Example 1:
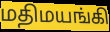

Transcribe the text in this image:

மதிமயங்கி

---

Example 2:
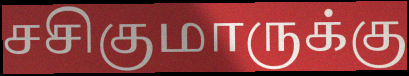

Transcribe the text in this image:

சசிகுமாருக்கு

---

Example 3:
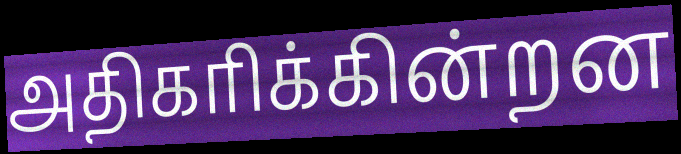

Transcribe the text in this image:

அதிகரிக்கின்றன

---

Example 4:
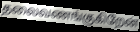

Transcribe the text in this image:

தலைவணங்குகிறேன்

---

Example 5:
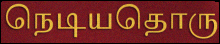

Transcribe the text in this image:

நெடியதொரு